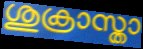
ശുക്രാസ്താ